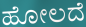
ಹೋಲದೆ